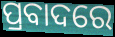
ପ୍ରବାଦରେ